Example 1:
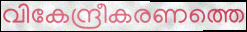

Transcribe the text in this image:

വികേന്ദ്രീകരണത്തെ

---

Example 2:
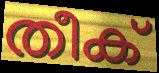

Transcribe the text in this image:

തീക്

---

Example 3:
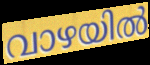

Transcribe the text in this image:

വാഴയിൽ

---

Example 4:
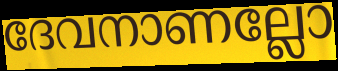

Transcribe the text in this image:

ദേവനാണല്ലോ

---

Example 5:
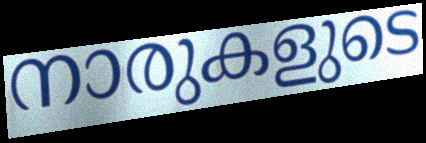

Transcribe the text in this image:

നാരുകളുടെ